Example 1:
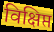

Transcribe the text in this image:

विक्षिप्त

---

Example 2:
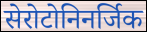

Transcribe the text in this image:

सेरोटोनिनर्जिक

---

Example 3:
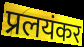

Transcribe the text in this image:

प्रलयंकर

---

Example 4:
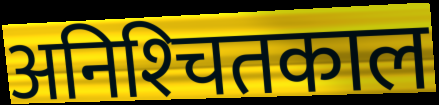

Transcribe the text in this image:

अनिश्‍चितकाल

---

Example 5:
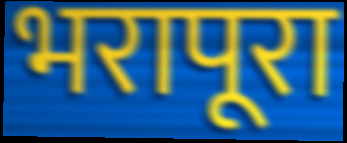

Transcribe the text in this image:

भरापूरा